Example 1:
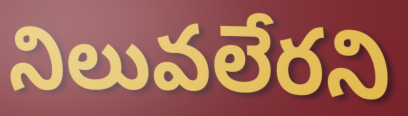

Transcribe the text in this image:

నిలువలేరని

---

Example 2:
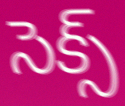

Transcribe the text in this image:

సెక్స్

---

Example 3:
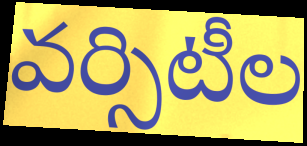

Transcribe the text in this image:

వర్సిటీల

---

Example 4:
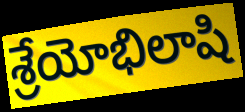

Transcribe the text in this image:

శ్రేయోభిలాషి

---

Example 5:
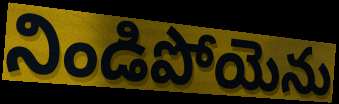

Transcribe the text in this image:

నిండిపోయెను